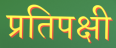
प्रतिपक्षी